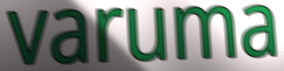
varuma